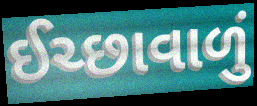
ઈચ્છાવાળું